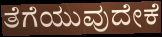
ತೆಗೆಯುವುದೇಕೆ